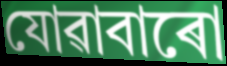
যোৱাবাৰো